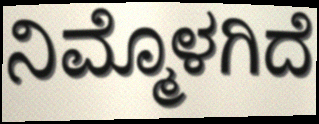
ನಿಮ್ಮೊಳಗಿದೆ